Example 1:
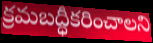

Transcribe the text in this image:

క్రమబద్ధీకరించాలని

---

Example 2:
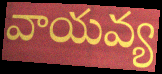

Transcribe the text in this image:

వాయవ్య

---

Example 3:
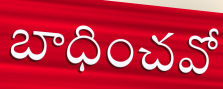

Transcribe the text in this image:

బాధించవో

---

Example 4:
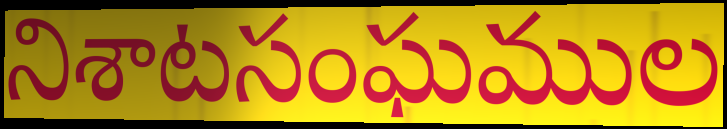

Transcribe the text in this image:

నిశాటసంఘముల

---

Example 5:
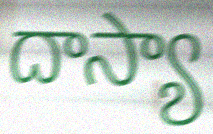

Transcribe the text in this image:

దాస్యా